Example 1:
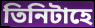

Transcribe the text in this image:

তিনিটাহে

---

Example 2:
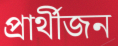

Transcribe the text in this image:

প্ৰাৰ্থীজন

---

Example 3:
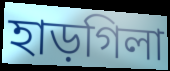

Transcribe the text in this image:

হাড়গিলা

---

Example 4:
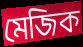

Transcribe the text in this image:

মেজিক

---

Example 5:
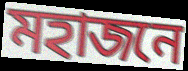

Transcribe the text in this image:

মহাজনে